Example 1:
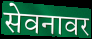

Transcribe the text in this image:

सेवनावर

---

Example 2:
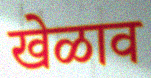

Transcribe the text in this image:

खेळाव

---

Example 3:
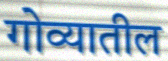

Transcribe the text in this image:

गोव्यातील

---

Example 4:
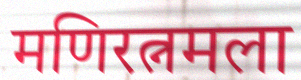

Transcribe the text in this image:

मणिरत्नमला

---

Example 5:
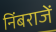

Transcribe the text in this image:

निंबराजें